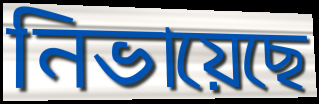
নিভায়েছে